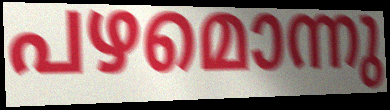
പഴമൊന്നു